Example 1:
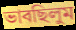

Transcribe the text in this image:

ভাবছিলুম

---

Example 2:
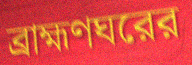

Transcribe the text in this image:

ব্রাহ্মণঘরের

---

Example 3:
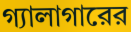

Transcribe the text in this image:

গ্যালাগারের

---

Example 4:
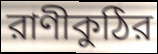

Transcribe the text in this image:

রাণীকুঠির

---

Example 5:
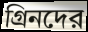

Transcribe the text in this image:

গ্রিনদের